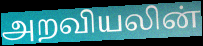
அறவியலின்